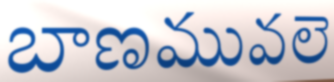
బాణమువలె